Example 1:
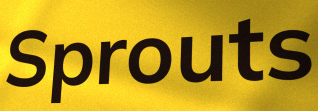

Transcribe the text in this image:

Sprouts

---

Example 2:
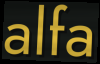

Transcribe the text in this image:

alfa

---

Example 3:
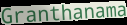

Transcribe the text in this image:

Granthanama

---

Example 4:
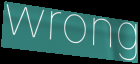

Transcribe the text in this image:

wrong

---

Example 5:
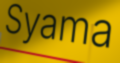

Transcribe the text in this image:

Syama